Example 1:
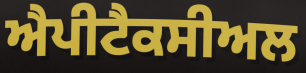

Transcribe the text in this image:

ਐਪੀਟੈਕਸੀਅਲ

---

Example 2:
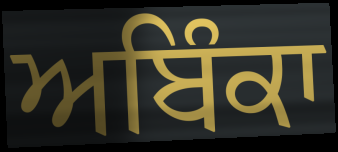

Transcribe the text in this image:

ਅਬਿੰਕਾ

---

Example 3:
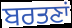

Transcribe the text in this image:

ਬਰਤਣਾਂ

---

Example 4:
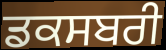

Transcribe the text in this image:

ਡਕਸਬਰੀ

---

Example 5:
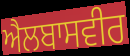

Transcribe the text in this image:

ਐਲਬਾਸਵੀਰ